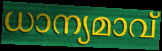
ധാന്യമാവ്